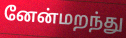
னேன்மறந்து